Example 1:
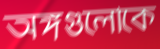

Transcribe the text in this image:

অঙ্গগুলোকে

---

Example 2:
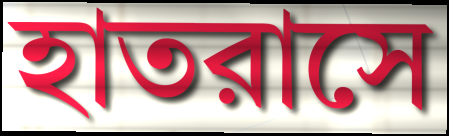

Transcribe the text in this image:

হাতরাসে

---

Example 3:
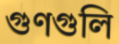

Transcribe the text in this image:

গুণগুলি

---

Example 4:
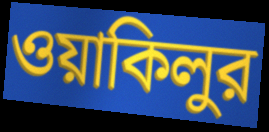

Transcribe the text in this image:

ওয়াকিলুর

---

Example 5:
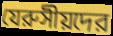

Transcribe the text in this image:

যেরুসীয়দের